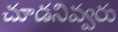
చూడనివ్వరు